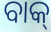
ବାକ୍